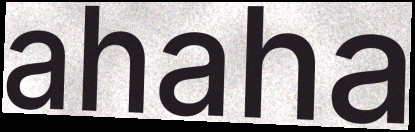
ahaha